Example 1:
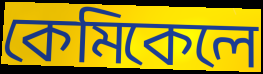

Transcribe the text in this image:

কেমিকেলে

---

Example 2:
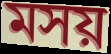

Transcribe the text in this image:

মসয়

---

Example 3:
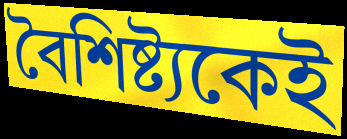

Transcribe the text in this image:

বৈশিষ্ট্যকেই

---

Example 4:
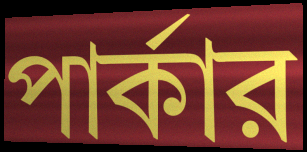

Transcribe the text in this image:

পার্কার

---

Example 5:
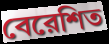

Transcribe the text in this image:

বেরেশিত